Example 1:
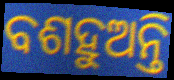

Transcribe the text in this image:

ବଶହୁଅନ୍ତି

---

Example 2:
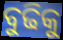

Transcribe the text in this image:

ବୁଢିକୁ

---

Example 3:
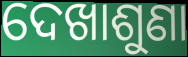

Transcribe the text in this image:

ଦେଖାଶୁଣା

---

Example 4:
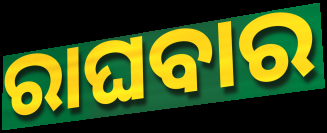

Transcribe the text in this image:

ରାଘବାର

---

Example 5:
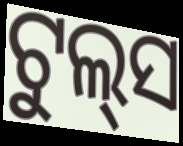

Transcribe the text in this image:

ଟୁଲ୍‌ସ